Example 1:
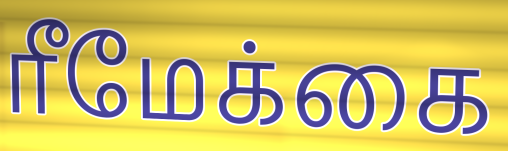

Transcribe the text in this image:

ரீமேக்கை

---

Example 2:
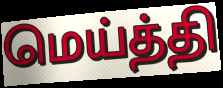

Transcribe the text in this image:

மெய்த்தி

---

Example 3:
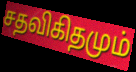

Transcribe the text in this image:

சதவிகிதமும்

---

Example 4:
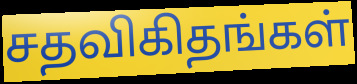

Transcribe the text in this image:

சதவிகிதங்கள்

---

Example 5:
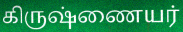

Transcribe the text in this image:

கிருஷ்ணையர்